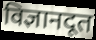
विज्ञानदूत